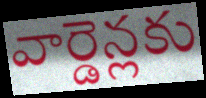
వార్డెన్లకు